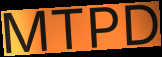
MTPD